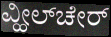
ವ್ಹೀಲ್‌ಚೇರ್